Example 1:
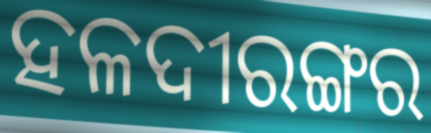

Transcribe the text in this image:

ହଳଦୀରଙ୍ଗର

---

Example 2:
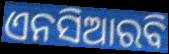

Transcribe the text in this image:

ଏନସିଆରବି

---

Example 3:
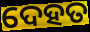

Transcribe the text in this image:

ଦେହତ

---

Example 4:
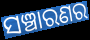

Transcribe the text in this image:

ସଞ୍ଚାରଣର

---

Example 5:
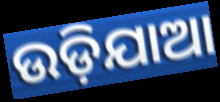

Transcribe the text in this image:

ଉଡ଼ିଯାଆ